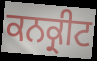
ਕਨਕ੍ਰੀਟ